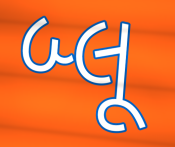
બ્લૂ